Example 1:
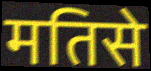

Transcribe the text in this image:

मतिसे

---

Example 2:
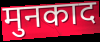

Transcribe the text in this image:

मुनकाद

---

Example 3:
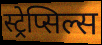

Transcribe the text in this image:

स्ट्रेप्सिल्स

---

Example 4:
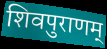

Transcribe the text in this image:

शिवपुराणम्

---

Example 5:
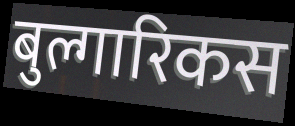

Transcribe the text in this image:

बुल्गारिकस